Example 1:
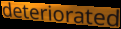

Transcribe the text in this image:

deteriorated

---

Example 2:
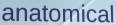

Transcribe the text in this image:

anatomical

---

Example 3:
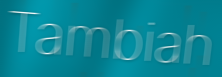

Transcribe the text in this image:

Tambiah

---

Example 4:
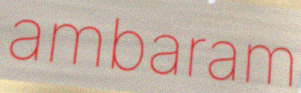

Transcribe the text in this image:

ambaram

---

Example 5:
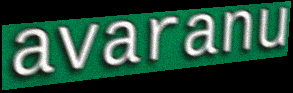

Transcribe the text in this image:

avaranu